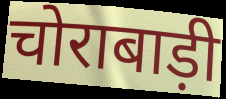
चोराबाड़ी